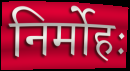
निर्मोहः